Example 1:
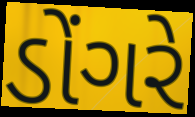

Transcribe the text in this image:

ડોંગરે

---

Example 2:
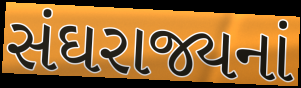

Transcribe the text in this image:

સંઘરાજ્યનાં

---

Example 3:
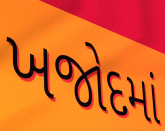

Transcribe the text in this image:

ખજોદમાં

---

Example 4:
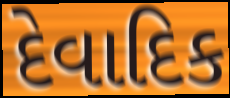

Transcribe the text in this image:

દેવાદિક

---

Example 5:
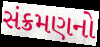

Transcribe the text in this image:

સંક્રમણનો